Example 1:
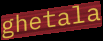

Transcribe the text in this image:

ghetala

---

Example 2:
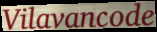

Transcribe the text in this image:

Vilavancode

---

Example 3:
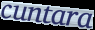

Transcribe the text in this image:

cuntara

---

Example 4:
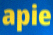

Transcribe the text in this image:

apie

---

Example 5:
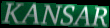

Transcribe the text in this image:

KANSAR